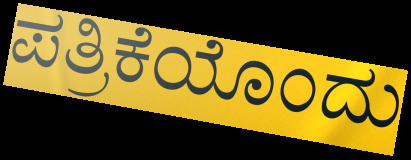
ಪತ್ರಿಕೆಯೊಂದು